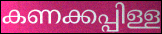
കണക്കപ്പിള്ള